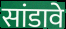
सांडावे